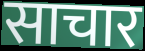
साचार